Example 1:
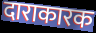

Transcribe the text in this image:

दाराकारक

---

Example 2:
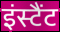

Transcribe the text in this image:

इंस्टैंट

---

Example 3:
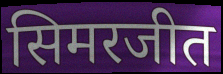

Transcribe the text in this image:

सिमरजीत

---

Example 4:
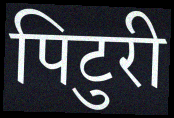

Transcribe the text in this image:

पिटुरी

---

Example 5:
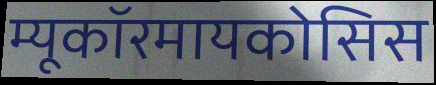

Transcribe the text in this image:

म्यूकॉरमायकोसिस